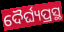
ଦୈର୍ଘ୍ୟପ୍ରସ୍ଥ